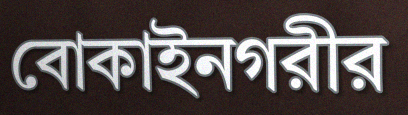
বোকাইনগরীর